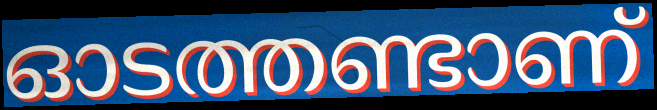
ഓടത്തണ്ടാണ്